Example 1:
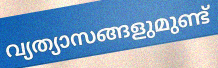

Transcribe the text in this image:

വ്യത്യാസങ്ങളുമുണ്ട്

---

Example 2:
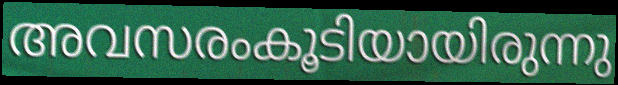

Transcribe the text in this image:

അവസരംകൂടിയായിരുന്നു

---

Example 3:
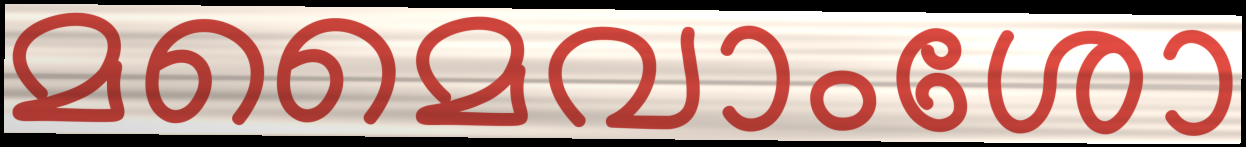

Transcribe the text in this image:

മമൈവാംശോ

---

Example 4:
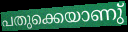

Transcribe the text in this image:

പതുക്കെയാണു്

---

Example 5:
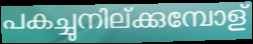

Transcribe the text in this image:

പകച്ചുനില്ക്കുമ്പോള്